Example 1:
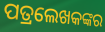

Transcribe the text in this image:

ପତ୍ରଲେଖକଙ୍କର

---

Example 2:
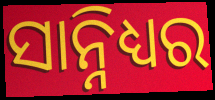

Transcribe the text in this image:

ସାନ୍ନିଧ୍ୟର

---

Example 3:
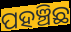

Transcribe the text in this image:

ପହଞ୍ଚିଛ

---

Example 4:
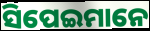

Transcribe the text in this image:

ସିପେଇମାନେ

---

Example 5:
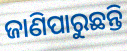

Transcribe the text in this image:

ଜାଣିପାରୁଛନ୍ତି